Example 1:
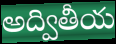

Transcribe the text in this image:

అద్వితీయ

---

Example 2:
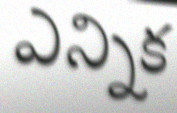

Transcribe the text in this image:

ఎన్నిక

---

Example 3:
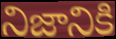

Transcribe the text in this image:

నిజానికి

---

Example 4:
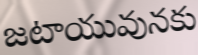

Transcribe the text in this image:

జటాయువునకు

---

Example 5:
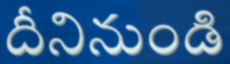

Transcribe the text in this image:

దీనినుండి